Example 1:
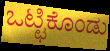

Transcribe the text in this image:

ಒಟ್ಟಿಕೊಂಡು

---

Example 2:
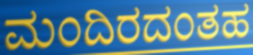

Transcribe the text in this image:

ಮಂದಿರದಂತಹ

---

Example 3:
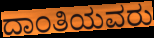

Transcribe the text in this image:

ದಾಂತಿಯವರು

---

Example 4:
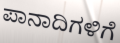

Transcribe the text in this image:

ಪಾನಾದಿಗಳಿಗೆ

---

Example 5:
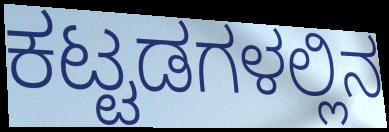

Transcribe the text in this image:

ಕಟ್ಟಡಗಳಲ್ಲಿನ